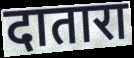
दातारा